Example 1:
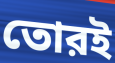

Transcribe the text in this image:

তোরই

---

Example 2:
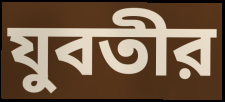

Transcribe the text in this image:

যুবতীর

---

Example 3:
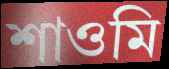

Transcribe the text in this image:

শাওমি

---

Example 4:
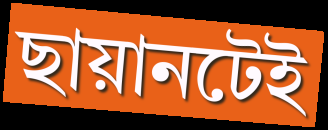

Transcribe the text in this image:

ছায়ানটেই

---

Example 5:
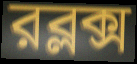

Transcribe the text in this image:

রব্লক্স